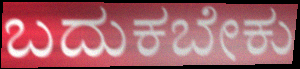
ಬದುಕಬೇಕು